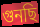
গুনছি